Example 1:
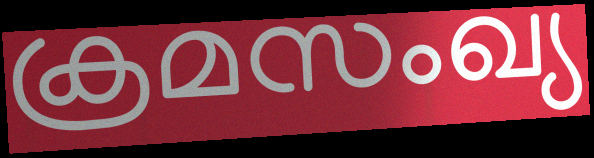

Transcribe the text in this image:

ക്രമസംഖ്യ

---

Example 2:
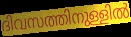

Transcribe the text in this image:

ദിവസത്തിനുള്ളിൽ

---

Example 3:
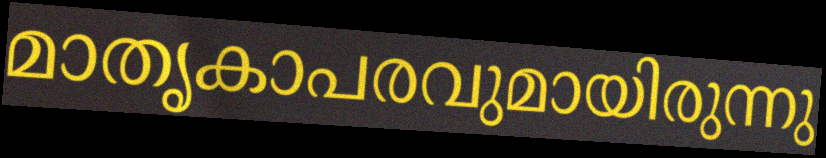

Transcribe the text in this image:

മാതൃകാപരവുമായിരുന്നു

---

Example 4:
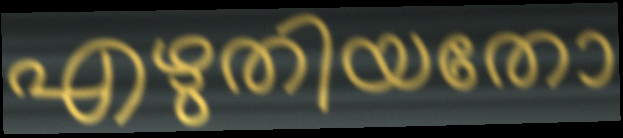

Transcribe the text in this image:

എഴുതിയതോ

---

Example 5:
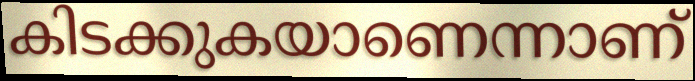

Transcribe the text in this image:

കിടക്കുകയാണെന്നാണ്